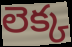
లెక్క